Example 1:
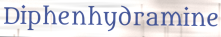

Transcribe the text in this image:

Diphenhydramine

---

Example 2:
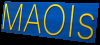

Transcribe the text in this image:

MAOIs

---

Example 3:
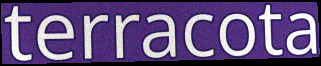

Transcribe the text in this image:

terracota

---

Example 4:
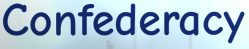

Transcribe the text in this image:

Confederacy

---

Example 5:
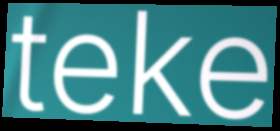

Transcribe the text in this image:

teke